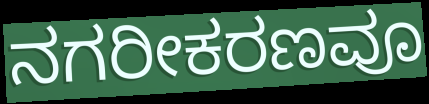
ನಗರೀಕರಣವೂ